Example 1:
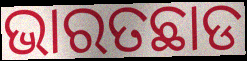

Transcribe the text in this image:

ଭାରତଛାଡ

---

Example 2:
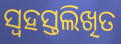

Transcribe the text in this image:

ସ୍ୱହସ୍ତଲିଖିତ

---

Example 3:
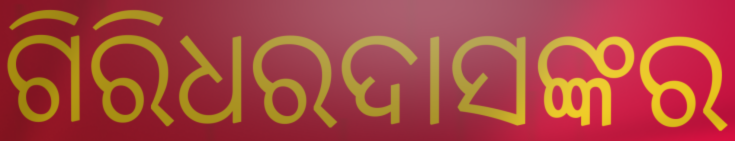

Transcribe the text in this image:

ଗିରିଧରଦାସଙ୍କର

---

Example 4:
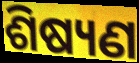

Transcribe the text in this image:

ଶିଷ୍ୟଣ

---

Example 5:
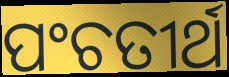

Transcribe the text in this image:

ପଂଚତୀର୍ଥ